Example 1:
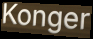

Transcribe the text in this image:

Konger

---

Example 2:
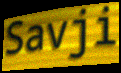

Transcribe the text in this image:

Savji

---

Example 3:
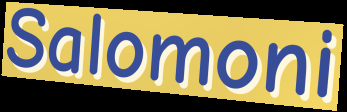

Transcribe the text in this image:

Salomoni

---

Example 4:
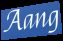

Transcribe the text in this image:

Aang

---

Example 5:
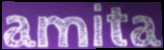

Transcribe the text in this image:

amita